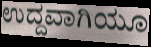
ಉದ್ದವಾಗಿಯೂ